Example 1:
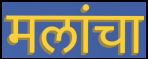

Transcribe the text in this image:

मलांचा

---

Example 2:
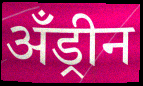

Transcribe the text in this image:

अँड्रीन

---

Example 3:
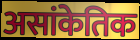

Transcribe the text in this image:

असांकेतिक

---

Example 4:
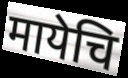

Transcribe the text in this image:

मायेचि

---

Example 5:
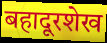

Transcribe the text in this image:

बहादूरशेख